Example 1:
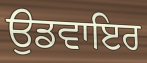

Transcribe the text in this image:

ਉਡਵਾਇਰ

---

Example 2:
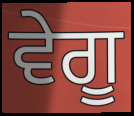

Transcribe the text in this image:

ਵੇਗੂ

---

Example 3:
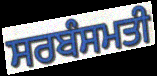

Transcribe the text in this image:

ਸਰਬੰਸਮਤੀ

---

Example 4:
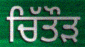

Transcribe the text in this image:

ਚਿੱਤੌੜ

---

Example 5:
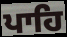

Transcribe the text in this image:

ਪਾਹਿ